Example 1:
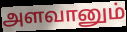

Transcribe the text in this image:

அளவானும்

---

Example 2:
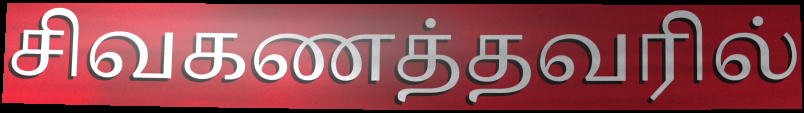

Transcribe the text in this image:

சிவகணத்தவரில்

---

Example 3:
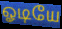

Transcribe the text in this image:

ஓடியே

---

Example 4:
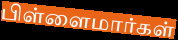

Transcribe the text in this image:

பிள்ளைமார்கள்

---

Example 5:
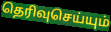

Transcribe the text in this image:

தெரிவுசெய்யும்